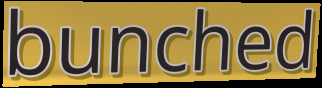
bunched